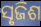
ସୃଜିଶ